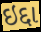
ઇદ્દા